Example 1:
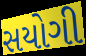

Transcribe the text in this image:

સયોગી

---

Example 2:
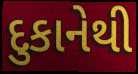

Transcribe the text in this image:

દુકાનેથી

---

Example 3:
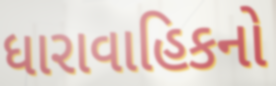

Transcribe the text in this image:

ધારાવાહિકનો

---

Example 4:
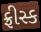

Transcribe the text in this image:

ફ્રીસ્ક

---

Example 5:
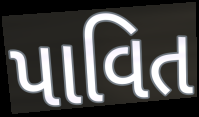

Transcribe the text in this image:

પાવિત